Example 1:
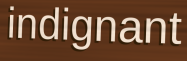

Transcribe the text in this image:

indignant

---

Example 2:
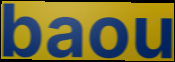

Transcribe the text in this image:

baou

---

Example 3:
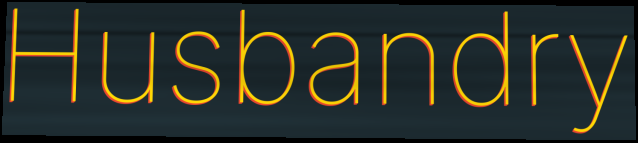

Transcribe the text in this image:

Husbandry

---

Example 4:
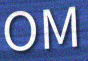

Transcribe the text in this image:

OM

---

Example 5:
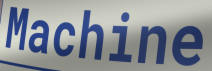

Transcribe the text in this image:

Machine